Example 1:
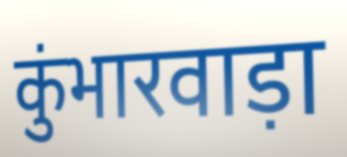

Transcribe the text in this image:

कुंभारवाड़ा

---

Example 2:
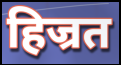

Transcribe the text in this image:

हिज्रत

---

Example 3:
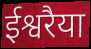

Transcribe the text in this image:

ईश्वरैया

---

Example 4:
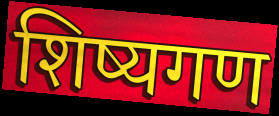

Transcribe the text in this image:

शिष्यगण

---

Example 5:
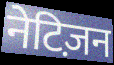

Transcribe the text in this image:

नेटिज़न